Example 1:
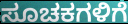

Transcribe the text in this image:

ಸೂಚಕಗಳಿಗೆ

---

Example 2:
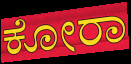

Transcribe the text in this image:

ಕೋರಾ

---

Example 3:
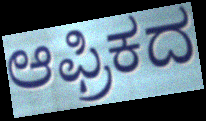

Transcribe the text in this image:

ಆಫ್ರಿಕದ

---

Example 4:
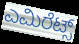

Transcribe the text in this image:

ಎಮಿರೆಟ್ಸ್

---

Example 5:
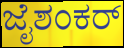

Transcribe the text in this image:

ಜೈಶಂಕರ್